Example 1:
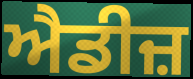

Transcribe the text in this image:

ਐਡੀਜ਼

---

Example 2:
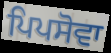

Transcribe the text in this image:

ਪਿਪਸੋਵਾ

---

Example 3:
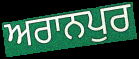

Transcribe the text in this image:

ਅਰਾਨਪੁਰ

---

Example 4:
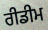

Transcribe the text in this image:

ਰੀਡੀਮ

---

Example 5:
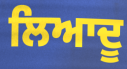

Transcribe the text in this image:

ਲਿਆਦੂ